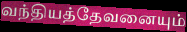
வந்தியத்தேவனையும்